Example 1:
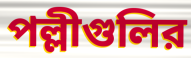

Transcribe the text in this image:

পল্লীগুলির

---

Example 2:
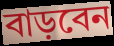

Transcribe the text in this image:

বাড়বেন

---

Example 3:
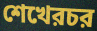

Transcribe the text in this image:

শেখেরচর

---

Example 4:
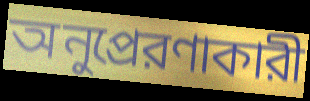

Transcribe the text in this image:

অনুপ্রেরণাকারী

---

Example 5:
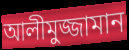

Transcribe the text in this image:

আলীমুজ্জামান